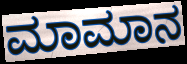
ಮಾಮಾನ